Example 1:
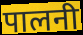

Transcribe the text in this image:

पालनी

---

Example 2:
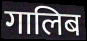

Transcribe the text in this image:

गालिब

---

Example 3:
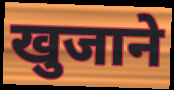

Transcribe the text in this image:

खुजाने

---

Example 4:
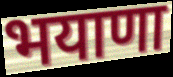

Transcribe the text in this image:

भयाणा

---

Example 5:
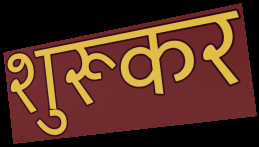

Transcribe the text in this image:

शुरूकर